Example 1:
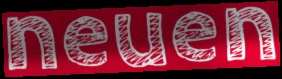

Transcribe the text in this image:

neuen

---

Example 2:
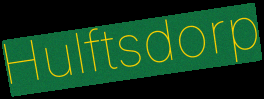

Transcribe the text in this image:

Hulftsdorp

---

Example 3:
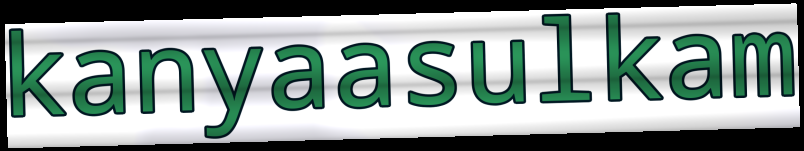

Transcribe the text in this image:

kanyaasulkam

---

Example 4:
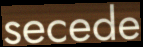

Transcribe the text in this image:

secede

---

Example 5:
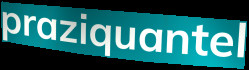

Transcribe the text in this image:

praziquantel